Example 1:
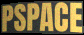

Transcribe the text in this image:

PSPACE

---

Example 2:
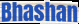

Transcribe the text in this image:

Bhashan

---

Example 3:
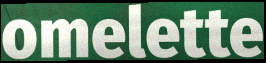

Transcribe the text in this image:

omelette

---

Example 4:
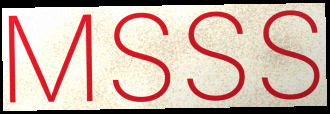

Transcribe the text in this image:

MSSS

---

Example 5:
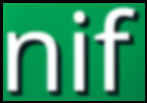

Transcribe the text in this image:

nif